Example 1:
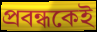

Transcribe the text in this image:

প্রবন্ধকেই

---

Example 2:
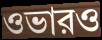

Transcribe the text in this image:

ওভারও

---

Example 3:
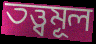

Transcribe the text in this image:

তত্ত্বমূল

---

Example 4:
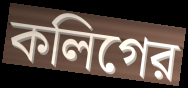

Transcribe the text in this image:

কলিগের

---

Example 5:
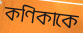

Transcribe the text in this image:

কণিকাকে